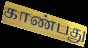
காண்பது